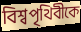
বিশ্বপৃথিবীকে